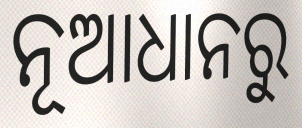
ନୂଆଧାନରୁ